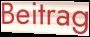
Beitrag